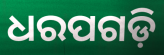
ଧରପଗଡ଼ି